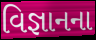
વિજ્ઞાનના